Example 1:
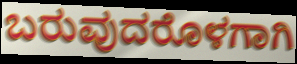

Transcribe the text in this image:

ಬರುವುದರೊಳಗಾಗಿ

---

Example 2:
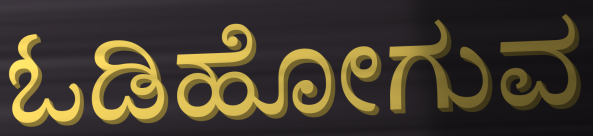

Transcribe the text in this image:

ಓಡಿಹೋಗುವ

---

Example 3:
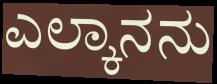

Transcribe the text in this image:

ಎಲ್ಕಾನನು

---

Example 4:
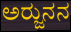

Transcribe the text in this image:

ಅರ್‍ಜುನನ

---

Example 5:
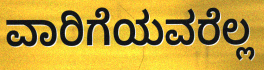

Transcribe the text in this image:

ವಾರಿಗೆಯವರೆಲ್ಲ